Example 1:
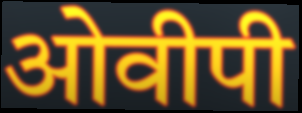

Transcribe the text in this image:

ओवीपी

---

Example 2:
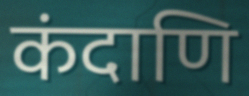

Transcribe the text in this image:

कंदाणि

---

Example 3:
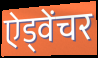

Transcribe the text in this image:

ऐड्वेंचर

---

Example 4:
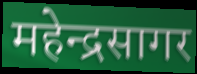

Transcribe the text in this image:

महेन्द्रसागर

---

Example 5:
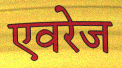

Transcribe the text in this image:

एवरेज